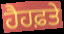
ਹੈਹਫ਼ਤੇ